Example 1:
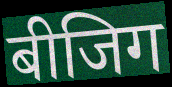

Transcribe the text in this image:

बीजिग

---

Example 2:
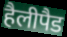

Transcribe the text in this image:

हैलीपैड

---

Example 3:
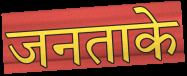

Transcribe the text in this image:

जनताके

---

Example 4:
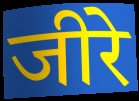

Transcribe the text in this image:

जीरे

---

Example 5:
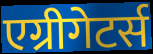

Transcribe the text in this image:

एग्रीगेटर्स